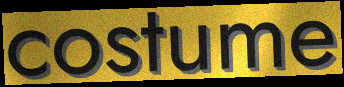
costume